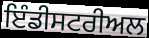
ਇੰਡੀਸਟਰੀਅਲ